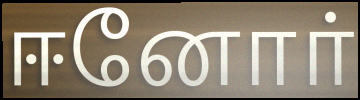
ஈனோர்